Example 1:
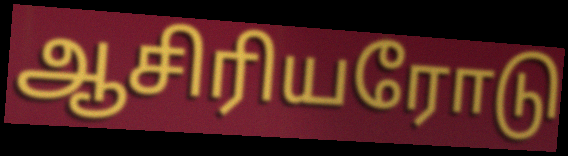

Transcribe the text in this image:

ஆசிரியரோடு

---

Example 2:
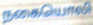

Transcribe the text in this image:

நகையொலி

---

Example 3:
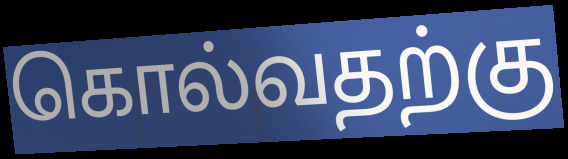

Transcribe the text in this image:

கொல்வதற்கு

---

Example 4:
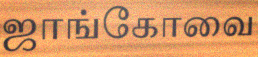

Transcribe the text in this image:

ஜாங்கோவை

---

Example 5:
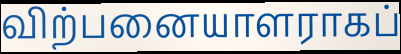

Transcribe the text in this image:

விற்பனையாளராகப்